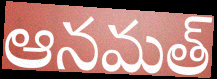
ఆనమత్